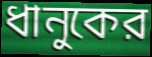
ধানুকের